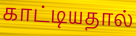
காட்டியதால்